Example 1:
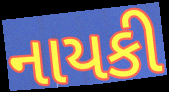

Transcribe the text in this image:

નાયકી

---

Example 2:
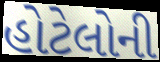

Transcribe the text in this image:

હોટેલોની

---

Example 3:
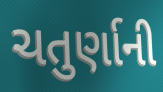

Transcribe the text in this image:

ચતુર્ણાની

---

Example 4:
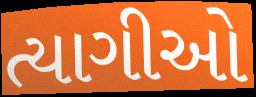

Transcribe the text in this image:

ત્યાગીઓ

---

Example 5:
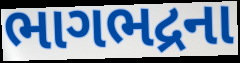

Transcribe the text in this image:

ભાગભદ્રના